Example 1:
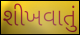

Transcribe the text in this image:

શીખવાતું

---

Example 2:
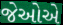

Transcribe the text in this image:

જેઓએ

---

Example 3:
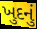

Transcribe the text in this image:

ખુદનું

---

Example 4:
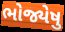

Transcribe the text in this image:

ભોજ્યેષુ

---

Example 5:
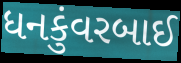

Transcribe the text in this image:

ધનકુંવરબાઈ